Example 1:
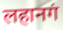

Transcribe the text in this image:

लहानगं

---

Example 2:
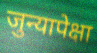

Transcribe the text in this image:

जुन्यापेक्षा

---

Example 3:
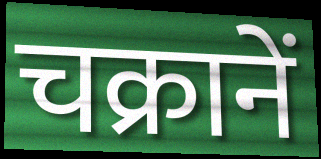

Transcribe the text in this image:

चक्रानें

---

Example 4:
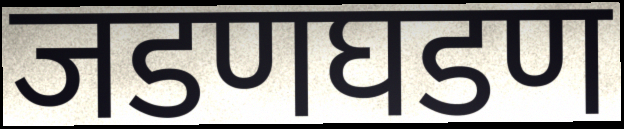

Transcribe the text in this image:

जडणघडण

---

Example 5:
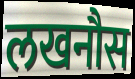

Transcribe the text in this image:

लखनौस